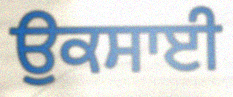
ਉਕਸਾਈ